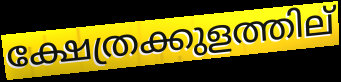
ക്ഷേത്രക്കുളത്തില്